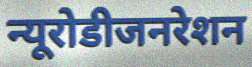
न्यूरोडीजनरेशन